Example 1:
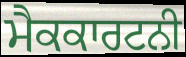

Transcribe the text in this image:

ਮੈਕਕਾਰਟਨੀ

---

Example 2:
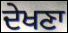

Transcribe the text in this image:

ਦੇਖਣਾ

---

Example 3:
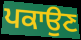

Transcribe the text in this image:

ਪਕਾਉਣ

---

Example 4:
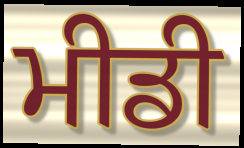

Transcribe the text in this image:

ਮੀਡੀ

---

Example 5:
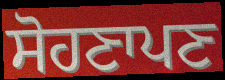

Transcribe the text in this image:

ਸੋਹਣਾਪਣ